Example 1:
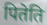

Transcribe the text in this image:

पितेति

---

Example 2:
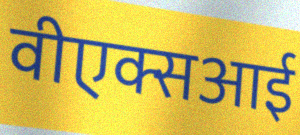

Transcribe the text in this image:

वीएक्सआई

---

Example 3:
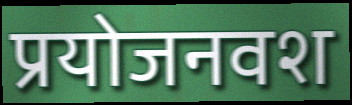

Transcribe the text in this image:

प्रयोजनवश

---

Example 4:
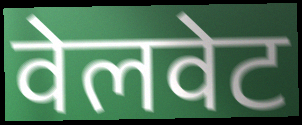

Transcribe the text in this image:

वेलवेट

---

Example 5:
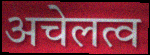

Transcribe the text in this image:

अचेलत्व